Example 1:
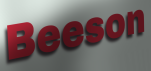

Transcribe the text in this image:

Beeson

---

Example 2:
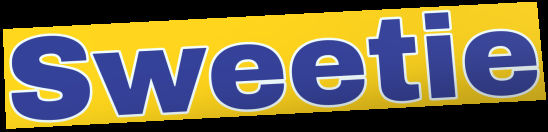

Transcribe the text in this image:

Sweetie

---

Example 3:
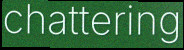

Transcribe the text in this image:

chattering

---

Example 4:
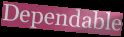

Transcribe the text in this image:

Dependable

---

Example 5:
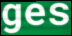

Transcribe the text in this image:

ges